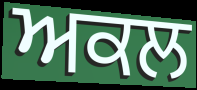
ਅਕਲ